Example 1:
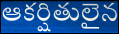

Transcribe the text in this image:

ఆకర్షితులైన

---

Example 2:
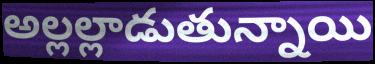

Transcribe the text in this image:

అల్లల్లాడుతున్నాయి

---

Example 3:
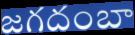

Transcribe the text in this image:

జగదంబా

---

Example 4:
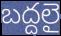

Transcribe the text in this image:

బద్దలై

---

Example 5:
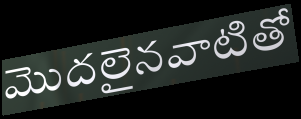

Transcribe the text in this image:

మొదలైనవాటితో